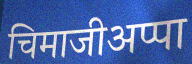
चिमाजीअप्पा